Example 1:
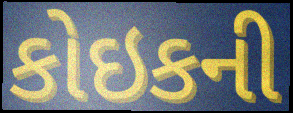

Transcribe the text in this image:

કોઇકની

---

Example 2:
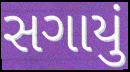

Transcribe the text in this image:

સગાયું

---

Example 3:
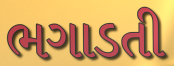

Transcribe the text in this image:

ભગાડતી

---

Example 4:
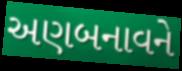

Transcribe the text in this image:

અણબનાવને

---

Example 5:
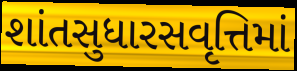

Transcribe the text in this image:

શાંતસુધારસવૃત્તિમાં